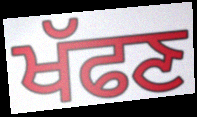
ਖੱਫਣ